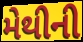
મેથીની